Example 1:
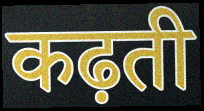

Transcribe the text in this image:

कढ़ती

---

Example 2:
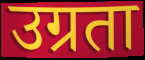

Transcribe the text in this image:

उग्रता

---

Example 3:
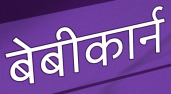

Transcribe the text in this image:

बेबीकार्न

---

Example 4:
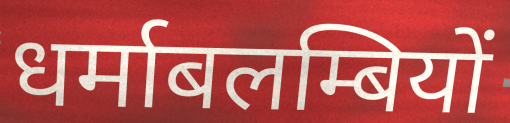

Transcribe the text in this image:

धर्माबलम्बियों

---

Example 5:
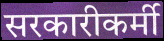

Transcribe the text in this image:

सरकारीकर्मी